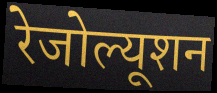
रेजोल्यूशन